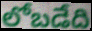
లోబడేది